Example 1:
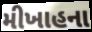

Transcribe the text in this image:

મીખાહના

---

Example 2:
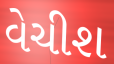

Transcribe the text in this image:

વેચીશ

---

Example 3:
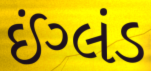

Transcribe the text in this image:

ઈંગ્લંડ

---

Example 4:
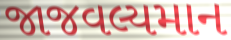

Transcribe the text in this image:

જાજવલ્યમાન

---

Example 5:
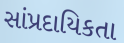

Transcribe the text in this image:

સાંપ્રદાયિકતા